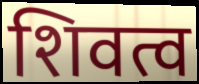
शिवत्व